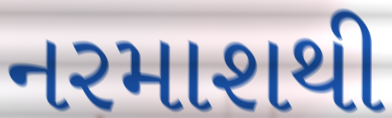
નરમાશથી